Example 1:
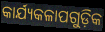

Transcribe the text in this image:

କାର୍ଯ୍ୟକଳାପଗୁଡ଼ିକ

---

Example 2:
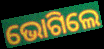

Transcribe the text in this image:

ଭୋଗିଲେ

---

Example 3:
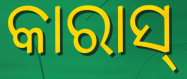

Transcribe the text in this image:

କାରାସ୍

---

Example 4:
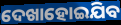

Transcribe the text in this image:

ଦେଖାହୋଇଯିବ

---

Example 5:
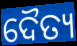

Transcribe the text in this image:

ଦୈତ୍ୟ